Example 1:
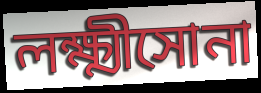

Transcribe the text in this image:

লক্ষ্মীসোনা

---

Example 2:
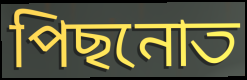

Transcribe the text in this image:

পিছনোত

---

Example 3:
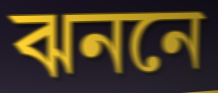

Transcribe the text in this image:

ঝননে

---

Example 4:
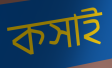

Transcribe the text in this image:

কসাই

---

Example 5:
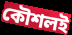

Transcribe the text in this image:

কৌশলই